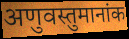
अणुवस्तुमानांक